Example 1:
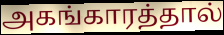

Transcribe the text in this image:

அகங்காரத்தால்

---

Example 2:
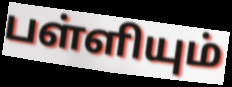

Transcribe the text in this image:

பள்ளியும்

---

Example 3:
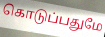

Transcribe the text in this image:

கொடுப்பதுமே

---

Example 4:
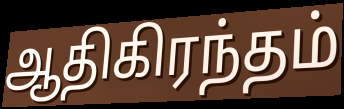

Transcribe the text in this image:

ஆதிகிரந்தம்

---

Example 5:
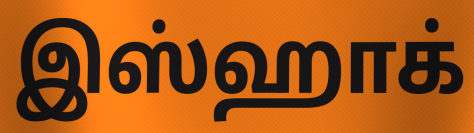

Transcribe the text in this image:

இஸ்ஹாக்